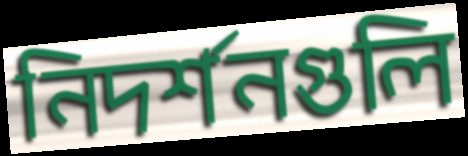
নিদর্শনগুলি